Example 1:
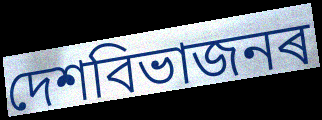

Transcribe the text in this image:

দেশবিভাজনৰ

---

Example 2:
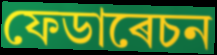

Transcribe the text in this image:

ফেডাৰেচন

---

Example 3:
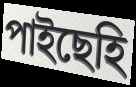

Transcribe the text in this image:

পাইছেহি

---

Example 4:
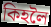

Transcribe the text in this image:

কিহলৈ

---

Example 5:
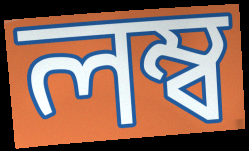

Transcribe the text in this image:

লম্ব